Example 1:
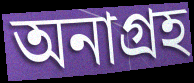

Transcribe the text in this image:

অনাগ্রহ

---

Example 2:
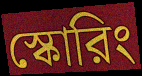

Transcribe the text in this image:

স্কোরিং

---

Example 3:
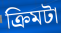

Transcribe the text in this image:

ক্রিমটা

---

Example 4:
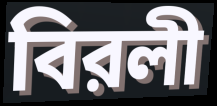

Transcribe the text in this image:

বিরলী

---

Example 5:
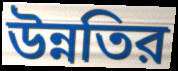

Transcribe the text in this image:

উন্নতির